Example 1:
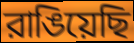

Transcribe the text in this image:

রাঙিয়েছি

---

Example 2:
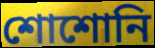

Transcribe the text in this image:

শোশোনি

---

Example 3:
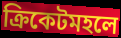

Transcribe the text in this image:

ক্রিকেটমহলে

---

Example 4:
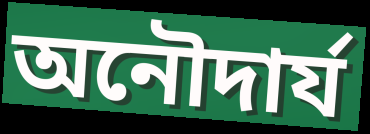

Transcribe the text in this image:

অনৌদার্য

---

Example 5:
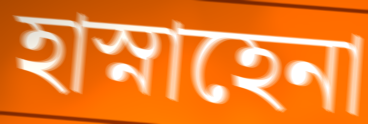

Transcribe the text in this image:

হাস্নাহেনা